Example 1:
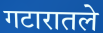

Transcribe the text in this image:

गटारातले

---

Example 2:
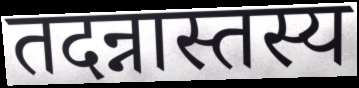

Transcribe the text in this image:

तदन्नास्तस्य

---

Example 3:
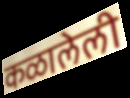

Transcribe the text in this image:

कळालेली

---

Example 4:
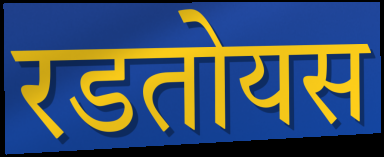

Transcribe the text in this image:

रडतोयस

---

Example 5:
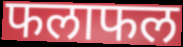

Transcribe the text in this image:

फलाफल